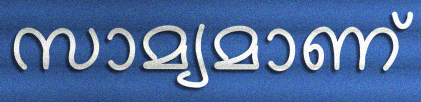
സാമ്യമാണ്